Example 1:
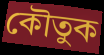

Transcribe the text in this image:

কৌতুক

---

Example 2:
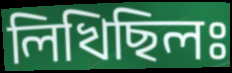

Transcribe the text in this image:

লিখিছিলঃ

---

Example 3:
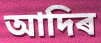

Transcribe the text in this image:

আদিৰ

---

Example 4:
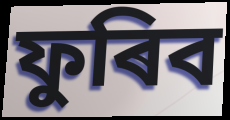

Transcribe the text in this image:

ফুৰিব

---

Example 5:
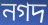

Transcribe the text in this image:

নগদ